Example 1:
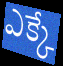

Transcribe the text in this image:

ఎక్కే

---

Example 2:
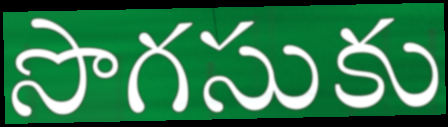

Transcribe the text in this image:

సొగసుకు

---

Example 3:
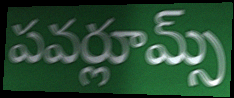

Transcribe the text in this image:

పవర్లూమ్స్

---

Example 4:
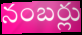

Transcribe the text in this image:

నంబర్లు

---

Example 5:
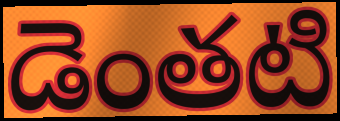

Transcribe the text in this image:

డెంతటి